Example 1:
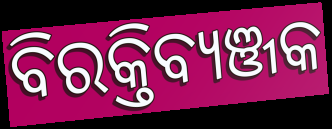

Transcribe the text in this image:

ବିରକ୍ତିବ୍ୟଞ୍ଜକ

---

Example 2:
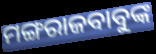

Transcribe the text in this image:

ମଙ୍ଗରାଜବାବୁଙ୍କ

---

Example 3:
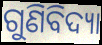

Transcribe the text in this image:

ଗୁଣିବିଦ୍ୟା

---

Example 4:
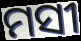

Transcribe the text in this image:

ମସୀ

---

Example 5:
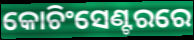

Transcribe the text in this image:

କୋଚିଂସେଣ୍ଟରରେ